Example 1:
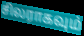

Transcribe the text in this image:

சிலராகவும்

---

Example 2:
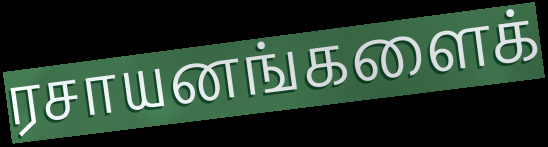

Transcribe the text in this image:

ரசாயனங்களைக்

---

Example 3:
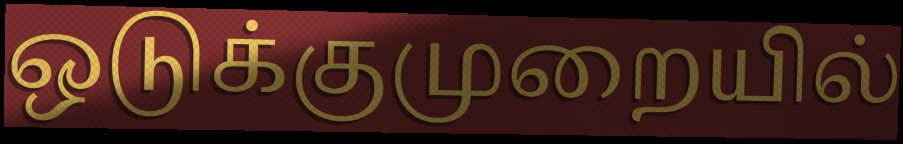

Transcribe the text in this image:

ஒடுக்குமுறையில்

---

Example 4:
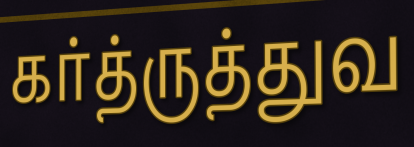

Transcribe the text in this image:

கர்த்ருத்துவ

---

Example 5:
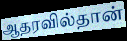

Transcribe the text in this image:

ஆதரவில்தான்